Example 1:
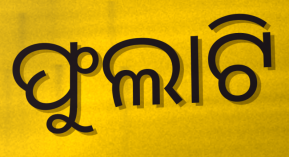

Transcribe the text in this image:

ଫୁଲାଟି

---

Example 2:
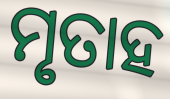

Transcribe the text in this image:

ମୃତାହ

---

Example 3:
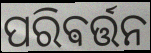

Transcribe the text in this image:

ପରିଵର୍ତ୍ତନ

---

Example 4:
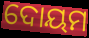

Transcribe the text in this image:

ଦୋୟମ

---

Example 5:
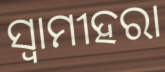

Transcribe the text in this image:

ସ୍ଵାମୀହରା